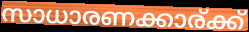
സാധാരണക്കാര്ക്ക്